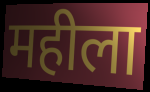
महीला